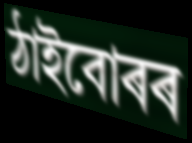
ঠাইবোৰৰ